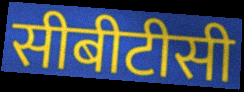
सीबीटीसी